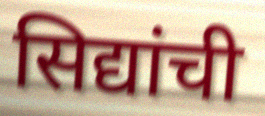
सिद्यांची